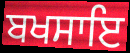
ਬਖਸਾਇ